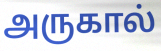
அருகால்